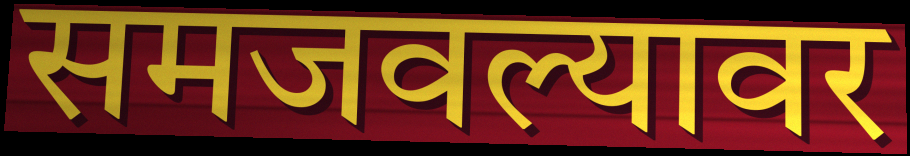
समजवल्यावर